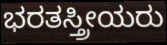
ಭರತಸ್ತ್ರೀಯರು